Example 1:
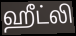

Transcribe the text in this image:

ஹீட்லி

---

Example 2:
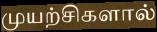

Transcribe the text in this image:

முயற்சிகளால்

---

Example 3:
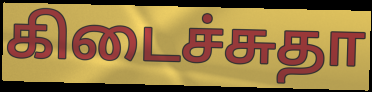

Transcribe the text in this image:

கிடைச்சுதா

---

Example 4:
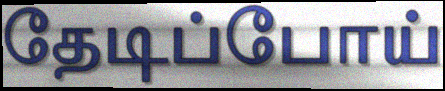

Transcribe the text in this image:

தேடிப்போய்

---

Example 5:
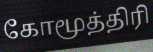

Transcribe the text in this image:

கோமூத்திரி